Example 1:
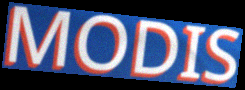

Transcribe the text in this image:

MODIS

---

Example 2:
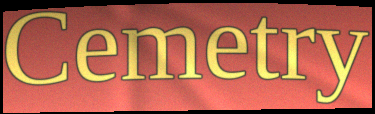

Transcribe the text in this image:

Cemetry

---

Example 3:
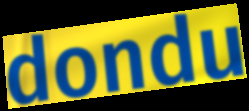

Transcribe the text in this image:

dondu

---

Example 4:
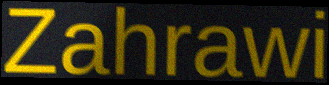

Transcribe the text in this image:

Zahrawi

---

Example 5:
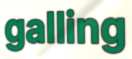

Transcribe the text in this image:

galling